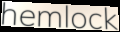
hemlock